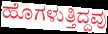
ಹೊಗಳುತ್ತಿದ್ದವು